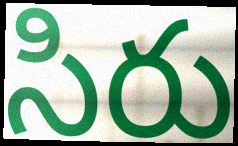
సిరు